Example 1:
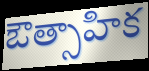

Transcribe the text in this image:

ఔత్సాహిక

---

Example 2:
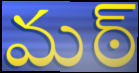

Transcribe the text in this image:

మఠ్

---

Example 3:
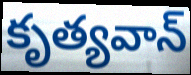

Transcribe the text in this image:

కృత్యవాన్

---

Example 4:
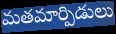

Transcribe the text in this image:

మతమార్పిడులు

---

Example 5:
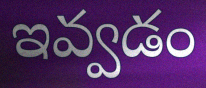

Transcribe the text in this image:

ఇవ్వడం